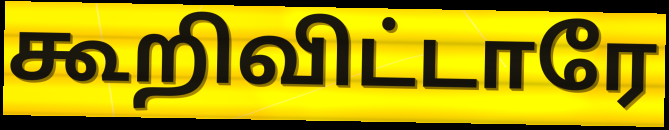
கூறிவிட்டாரே